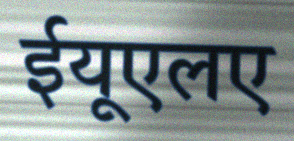
ईयूएलए